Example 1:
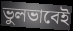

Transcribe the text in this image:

ভুলভাবেই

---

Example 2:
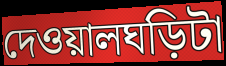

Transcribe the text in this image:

দেওয়ালঘড়িটা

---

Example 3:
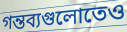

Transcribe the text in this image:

গন্তব্যগুলোতেও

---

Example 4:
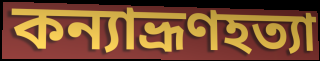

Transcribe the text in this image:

কন্যাভ্রূণহত্যা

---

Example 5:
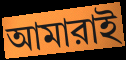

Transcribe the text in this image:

আমারাই